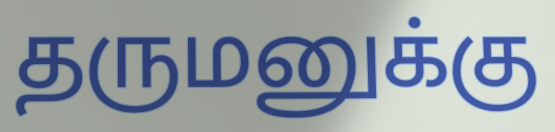
தருமனுக்கு